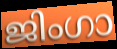
ജിംഗാ